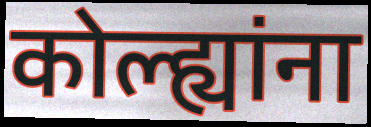
कोल्ह्यांना